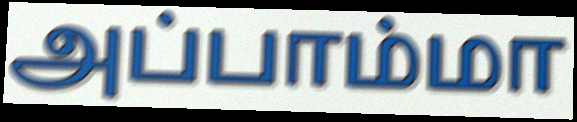
அப்பாம்மா